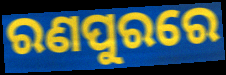
ରଣପୁରରେ